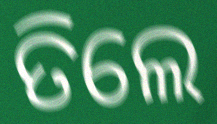
ତିଲେ